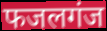
फजलगंज